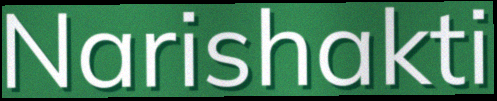
Narishakti